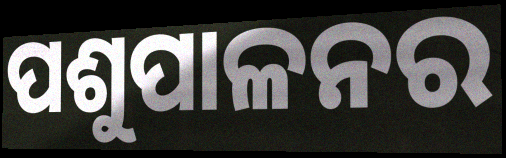
ପଶୁପାଳନର